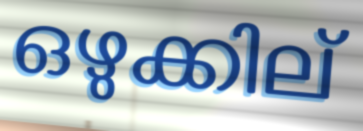
ഒഴുക്കില്